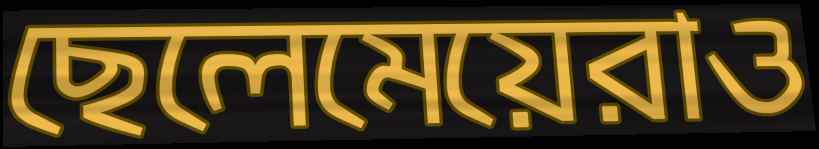
ছেলেমেয়েরাও